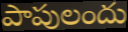
పాపులందు